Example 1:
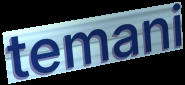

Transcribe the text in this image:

temani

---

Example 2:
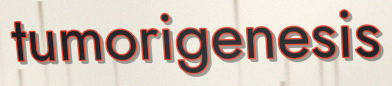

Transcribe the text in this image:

tumorigenesis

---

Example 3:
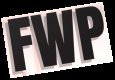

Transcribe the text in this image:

FWP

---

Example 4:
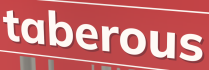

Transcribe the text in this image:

taberous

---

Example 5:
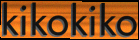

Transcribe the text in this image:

kikokiko